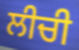
ਲੀਚੀ